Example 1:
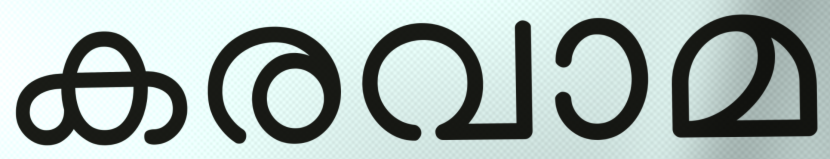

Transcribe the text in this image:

കരവാമ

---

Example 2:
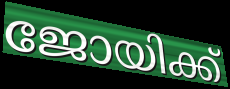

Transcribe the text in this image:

ജോയിക്ക്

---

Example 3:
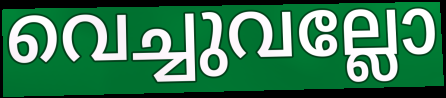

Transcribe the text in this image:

വെച്ചുവല്ലോ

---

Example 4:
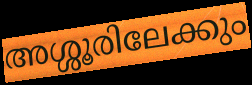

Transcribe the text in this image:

അശ്ശൂരിലേക്കും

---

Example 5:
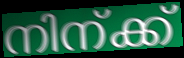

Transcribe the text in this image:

നിന്ക്ക്